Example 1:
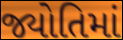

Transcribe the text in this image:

જ્યોતિમાં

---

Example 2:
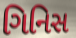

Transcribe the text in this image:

ગિનિસ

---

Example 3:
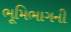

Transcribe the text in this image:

ભૂમિભાગની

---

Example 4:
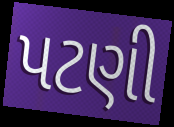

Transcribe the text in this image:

પટણી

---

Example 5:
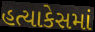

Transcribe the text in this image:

હત્યાકેસમાં